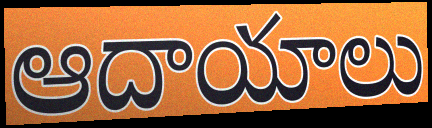
ఆదాయాలు